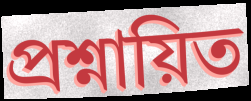
প্রশ্নায়িত